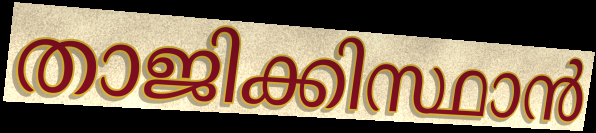
താജിക്കിസ്ഥാൻ